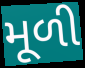
મૂળી